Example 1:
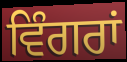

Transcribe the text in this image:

ਵਿੰਗਰਾਂ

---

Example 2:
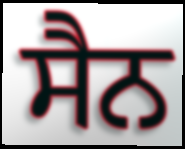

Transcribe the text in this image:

ਸੈਨ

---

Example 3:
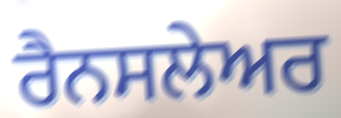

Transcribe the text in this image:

ਰੈਨਸਲੇਅਰ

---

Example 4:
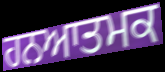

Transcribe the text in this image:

ਹਨਆਤਮਕ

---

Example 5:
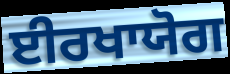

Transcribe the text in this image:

ਈਰਖਾਯੋਗ